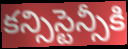
కన్సిస్టెన్సీకి